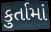
કુર્તામાં